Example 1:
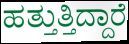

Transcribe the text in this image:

ಹತ್ತುತ್ತಿದ್ದಾರೆ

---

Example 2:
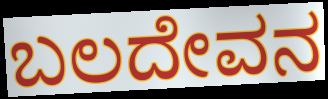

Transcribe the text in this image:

ಬಲದೇವನ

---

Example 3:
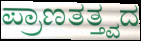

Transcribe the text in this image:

ಪ್ರಾಣತತ್ತ್ವದ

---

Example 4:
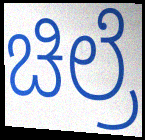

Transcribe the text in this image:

ಚಿಲ್ರೆ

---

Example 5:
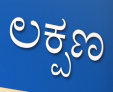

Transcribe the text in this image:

ಲಕ್ಪಣ